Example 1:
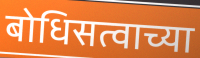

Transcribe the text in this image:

बोधिसत्वाच्या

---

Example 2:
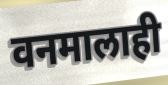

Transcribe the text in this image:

वनमालाही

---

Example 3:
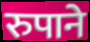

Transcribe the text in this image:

रुपाने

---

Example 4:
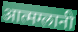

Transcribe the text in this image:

आत्मग्लानी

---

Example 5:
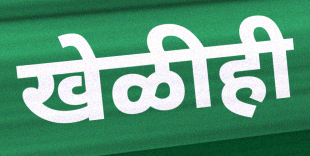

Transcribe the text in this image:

खेळीही